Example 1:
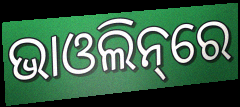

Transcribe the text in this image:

ଭାଓଲିନ୍‌ରେ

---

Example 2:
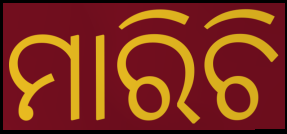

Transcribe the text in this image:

ମାରିଚି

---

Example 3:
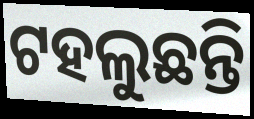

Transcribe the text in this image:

ଟହଲୁଛନ୍ତି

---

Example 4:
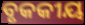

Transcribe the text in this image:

ବୃକକୀୟ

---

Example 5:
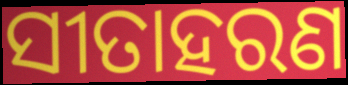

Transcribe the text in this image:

ସୀତାହରଣ